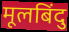
मूलबिंदु